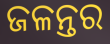
ଜଳନ୍ତର